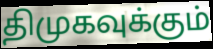
திமுகவுக்கும்